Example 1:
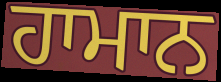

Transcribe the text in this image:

ਹਾਮਾਨ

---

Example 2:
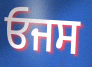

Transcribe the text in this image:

ਓਜਸ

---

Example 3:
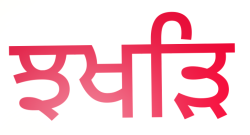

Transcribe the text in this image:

ਝਖੜਿ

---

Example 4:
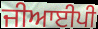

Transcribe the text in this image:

ਜੀਆਈਪੀ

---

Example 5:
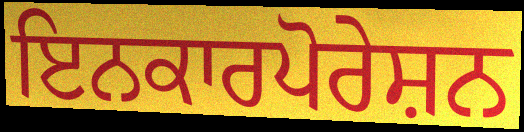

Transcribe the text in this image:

ਇਨਕਾਰਪੋਰੇਸ਼ਨ